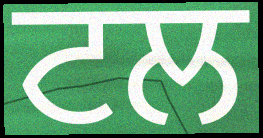
ਟਲ